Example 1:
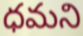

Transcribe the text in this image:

ధమని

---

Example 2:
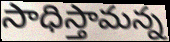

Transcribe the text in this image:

సాధిస్తామన్న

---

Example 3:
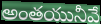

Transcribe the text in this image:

అంతయునీవే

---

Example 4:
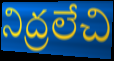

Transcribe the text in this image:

నిద్రలేచి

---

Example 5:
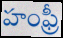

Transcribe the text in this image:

హంఫ్రీ